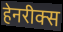
हेनरीक्स